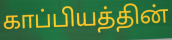
காப்பியத்தின்